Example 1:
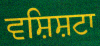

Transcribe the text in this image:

ਵਸ਼ਿਸ਼ਟਾ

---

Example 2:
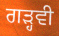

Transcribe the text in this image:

ਗੜ੍ਹਵੀ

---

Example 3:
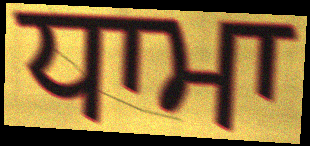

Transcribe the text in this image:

ਧਾਮਾ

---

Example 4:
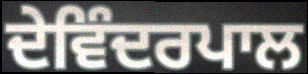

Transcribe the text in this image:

ਦੇਵਿੰਦਰਪਾਲ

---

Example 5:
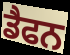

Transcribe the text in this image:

ਡੈਫਨ